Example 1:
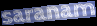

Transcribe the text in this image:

saranam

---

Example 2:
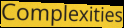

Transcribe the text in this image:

Complexities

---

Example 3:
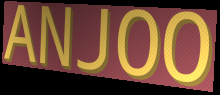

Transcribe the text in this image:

ANJOO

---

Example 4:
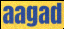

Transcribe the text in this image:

aagad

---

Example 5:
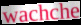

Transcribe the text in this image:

wachche